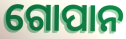
ଗୋପାନ